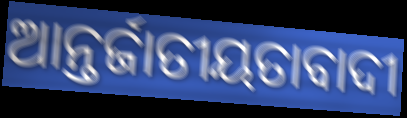
ଆନ୍ତର୍ଜାତୀୟତାବାଦୀ